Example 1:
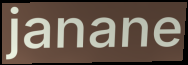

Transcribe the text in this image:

janane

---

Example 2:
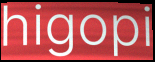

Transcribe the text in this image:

higopi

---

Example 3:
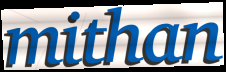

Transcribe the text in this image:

mithan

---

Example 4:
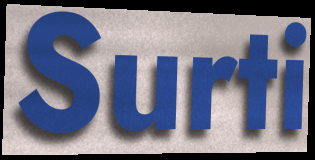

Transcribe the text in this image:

Surti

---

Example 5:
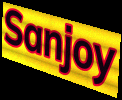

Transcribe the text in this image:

Sanjoy